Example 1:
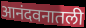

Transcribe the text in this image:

आनंदवनातली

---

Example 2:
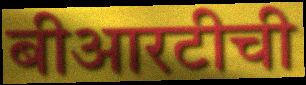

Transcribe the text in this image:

बीआरटीची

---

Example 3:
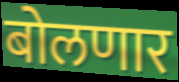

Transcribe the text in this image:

बोलणार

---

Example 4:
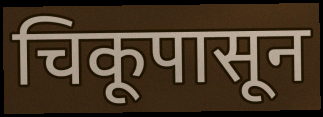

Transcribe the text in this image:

चिकूपासून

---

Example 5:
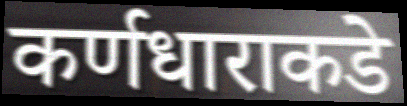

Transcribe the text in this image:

कर्णधाराकडे